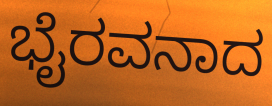
ಭೈರವನಾದ